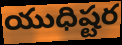
యుధిష్టర